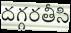
దగ్గరతీసి